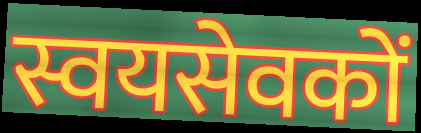
स्वयसेवकों